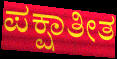
ಪಕ್ಷಾತೀತ